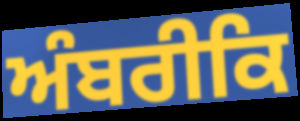
ਅੰਬਰੀਕਿ